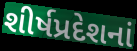
શીર્ષપ્રદેશનાં